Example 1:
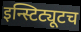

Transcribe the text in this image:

इन्स्टिट्यूटच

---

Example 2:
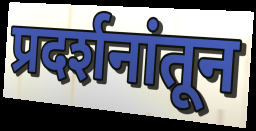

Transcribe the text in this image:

प्रदर्शनांतून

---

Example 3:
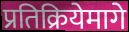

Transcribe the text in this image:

प्रतिक्रियेमागे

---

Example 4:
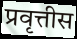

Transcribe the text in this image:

प्रवृत्तीस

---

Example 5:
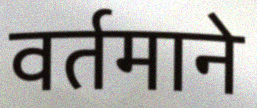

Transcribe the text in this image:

वर्तमाने